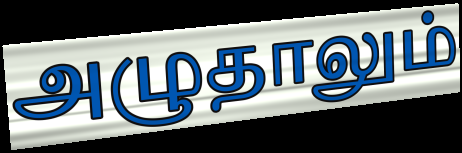
அழுதாலும்